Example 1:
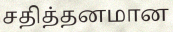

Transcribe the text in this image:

சதித்தனமான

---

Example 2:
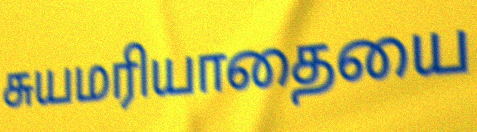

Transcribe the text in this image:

சுயமரியாதையை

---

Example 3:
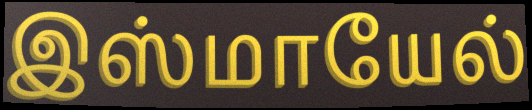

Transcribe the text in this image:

இஸ்மாயேல்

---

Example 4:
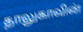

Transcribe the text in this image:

தாலுகாவின்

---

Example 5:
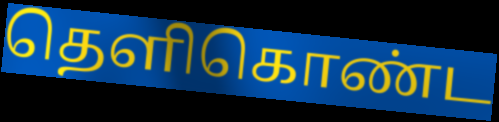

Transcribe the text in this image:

தெளிகொண்ட